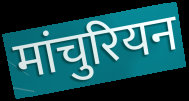
मांचुरियन